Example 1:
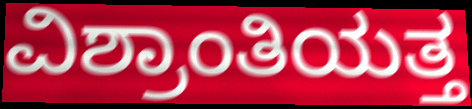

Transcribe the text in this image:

ವಿಶ್ರಾಂತಿಯತ್ತ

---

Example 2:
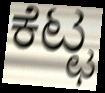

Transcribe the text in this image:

ಕೆಟ್ಟ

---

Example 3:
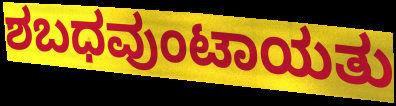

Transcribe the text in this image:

ಶಬಧವುಂಟಾಯತು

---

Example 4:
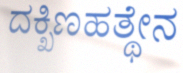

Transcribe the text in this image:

ದಕ್ಖಿಣಹತ್ಥೇನ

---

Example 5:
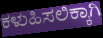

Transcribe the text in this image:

ಕಳುಹಿಸಲಿಕ್ಕಾಗಿ